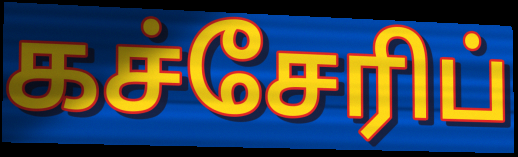
கச்சேரிப்